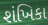
શંખિકા